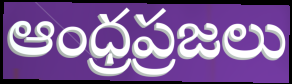
ఆంధ్రప్రజలు